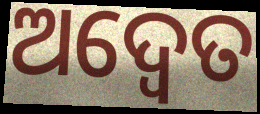
ଅଦ୍ଵେତ